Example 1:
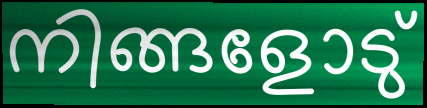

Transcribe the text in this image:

നിങ്ങളോടു്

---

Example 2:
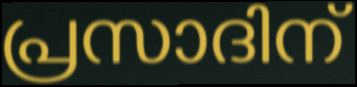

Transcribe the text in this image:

പ്രസാദിന്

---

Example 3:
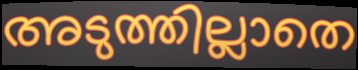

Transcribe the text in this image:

അടുത്തില്ലാതെ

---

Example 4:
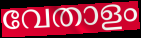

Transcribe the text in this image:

വേതാളം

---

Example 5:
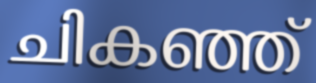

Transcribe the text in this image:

ചികഞ്ഞ്